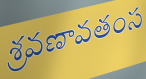
శ్రవణావతంస